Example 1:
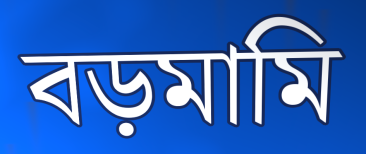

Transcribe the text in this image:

বড়মামি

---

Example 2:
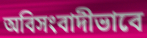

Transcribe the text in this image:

অবিসংবাদীভাবে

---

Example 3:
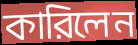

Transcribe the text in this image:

কারিলেন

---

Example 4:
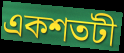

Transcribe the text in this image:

একশতটী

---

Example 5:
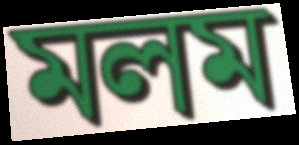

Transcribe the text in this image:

মলম